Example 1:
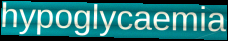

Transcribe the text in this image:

hypoglycaemia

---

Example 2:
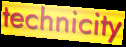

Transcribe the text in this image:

technicity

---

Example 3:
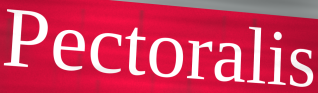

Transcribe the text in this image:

Pectoralis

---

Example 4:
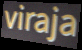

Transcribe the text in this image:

viraja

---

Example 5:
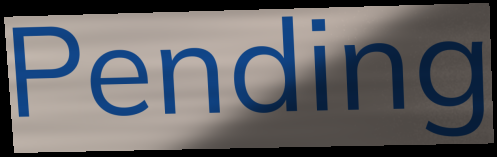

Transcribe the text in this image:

Pending